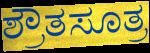
ಶ್ರೌತಸೂತ್ರ